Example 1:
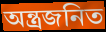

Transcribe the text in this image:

অন্ত্রজনিত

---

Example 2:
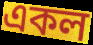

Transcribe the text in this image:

একল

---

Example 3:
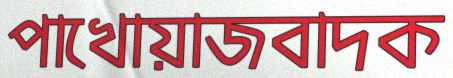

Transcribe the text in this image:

পাখোয়াজবাদক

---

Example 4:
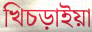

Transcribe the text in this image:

খিচড়াইয়া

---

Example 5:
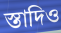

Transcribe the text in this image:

স্তাদিও